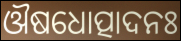
ଔଷଧୋତ୍ପାଦନଃ